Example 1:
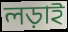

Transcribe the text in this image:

লড়াই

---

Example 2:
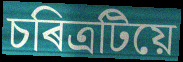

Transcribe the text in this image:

চৰিত্ৰটিয়ে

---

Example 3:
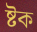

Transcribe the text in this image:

ষ্টক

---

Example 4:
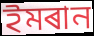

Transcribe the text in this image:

ইমৰান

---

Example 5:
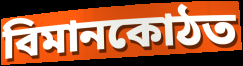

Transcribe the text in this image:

বিমানকোঠত